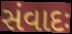
સંવાદઃ